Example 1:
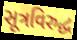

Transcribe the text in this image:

સૂત્રવિરુદ્ધ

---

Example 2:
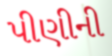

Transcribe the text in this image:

પીણીની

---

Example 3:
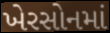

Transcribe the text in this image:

ખેરસોનમાં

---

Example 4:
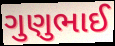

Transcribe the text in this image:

ગુણુભાઈ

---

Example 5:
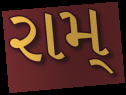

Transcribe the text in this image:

રામ્